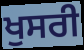
ਖੁਸਰੀ